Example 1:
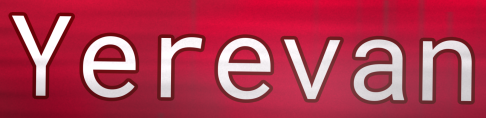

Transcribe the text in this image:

Yerevan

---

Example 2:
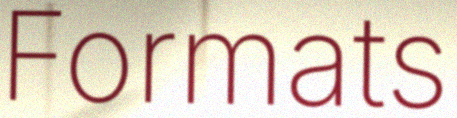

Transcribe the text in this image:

Formats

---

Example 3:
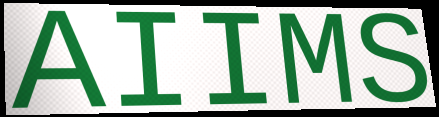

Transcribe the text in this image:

AIIMS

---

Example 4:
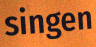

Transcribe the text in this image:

singen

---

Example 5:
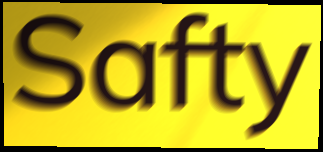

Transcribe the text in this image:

Safty